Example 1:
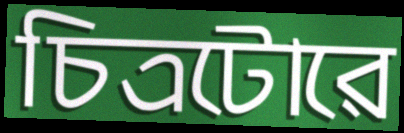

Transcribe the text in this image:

চিত্ৰটোৱে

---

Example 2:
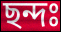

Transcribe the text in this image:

ছন্দঃ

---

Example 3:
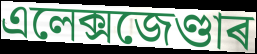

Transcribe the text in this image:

এলেক্সজেণ্ডাৰ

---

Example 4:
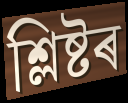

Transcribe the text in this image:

শ্লিষ্টৰ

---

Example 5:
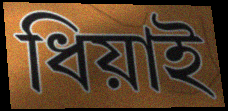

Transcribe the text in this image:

ধিয়াই